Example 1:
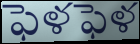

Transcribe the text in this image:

ఫెళఫెళ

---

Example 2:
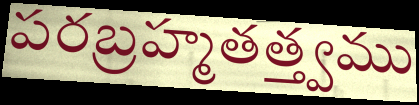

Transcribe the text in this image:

పరబ్రహ్మతత్త్వము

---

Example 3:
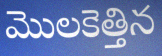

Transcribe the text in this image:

మొలకెత్తిన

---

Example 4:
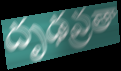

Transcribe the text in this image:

దృఢవ్రతా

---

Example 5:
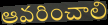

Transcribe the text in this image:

ఆవరించాలి